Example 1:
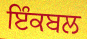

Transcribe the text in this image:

ਇੰਕਬਲ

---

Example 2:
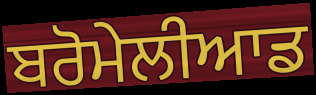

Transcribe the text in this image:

ਬਰੋਮੇਲੀਆਡ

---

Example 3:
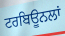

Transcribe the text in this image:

ਟਰਬਿਊਨਲਾਂ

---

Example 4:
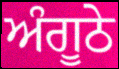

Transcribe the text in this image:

ਅੰਗੂਠੇ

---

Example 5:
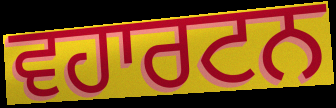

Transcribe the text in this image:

ਵਹਾਰਟਨ